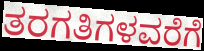
ತರಗತಿಗಳವರೆಗೆ